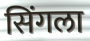
सिंगला